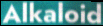
Alkaloid